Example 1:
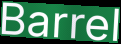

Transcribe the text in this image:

Barrel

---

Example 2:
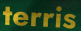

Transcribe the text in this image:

terris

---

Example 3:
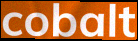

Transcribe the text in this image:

cobalt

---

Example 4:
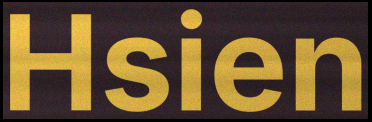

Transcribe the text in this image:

Hsien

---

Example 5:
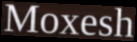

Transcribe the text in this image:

Moxesh